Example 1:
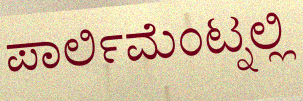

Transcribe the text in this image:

ಪಾರ್ಲಿಮೆಂಟ್ನಲ್ಲಿ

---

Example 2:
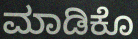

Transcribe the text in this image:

ಮಾಡಿಕೊ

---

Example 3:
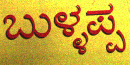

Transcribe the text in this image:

ಬುಳ್ಳಪ್ಪ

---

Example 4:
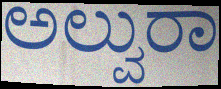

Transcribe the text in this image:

ಅಲ್ವುರಾ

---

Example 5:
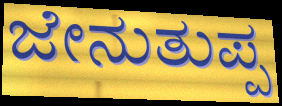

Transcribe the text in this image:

ಜೇನುತುಪ್ಪ